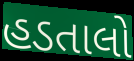
હડતાલો